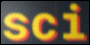
sci